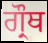
ਗ੍ਰੌਥ